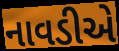
નાવડીએ